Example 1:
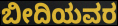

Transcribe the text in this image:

ಬೀದಿಯವರ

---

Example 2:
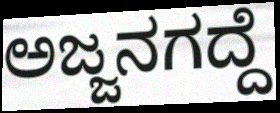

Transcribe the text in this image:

ಅಜ್ಜನಗದ್ದೆ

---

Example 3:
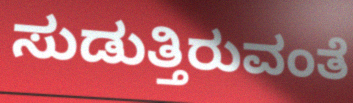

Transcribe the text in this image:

ಸುಡುತ್ತಿರುವಂತೆ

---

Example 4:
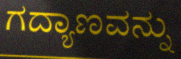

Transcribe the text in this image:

ಗದ್ಯಾಣವನ್ನು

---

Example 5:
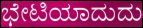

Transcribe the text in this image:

ಭೇಟಿಯಾದುದು